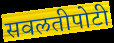
सवलतीपोटी